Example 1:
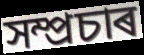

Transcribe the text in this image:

সম্প্ৰচাৰ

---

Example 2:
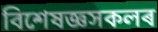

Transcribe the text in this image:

বিশেষজ্ঞসকলৰ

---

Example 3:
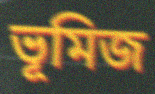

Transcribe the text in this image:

ভূমিজ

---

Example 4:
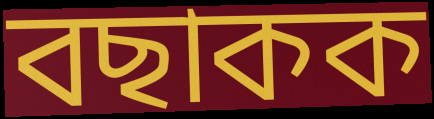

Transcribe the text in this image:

বছাকক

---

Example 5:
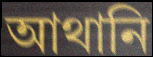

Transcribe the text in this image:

আথানি